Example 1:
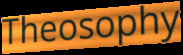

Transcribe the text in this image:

Theosophy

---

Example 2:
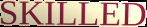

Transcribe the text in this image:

SKILLED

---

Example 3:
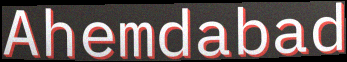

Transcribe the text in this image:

Ahemdabad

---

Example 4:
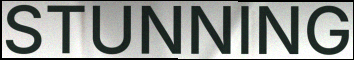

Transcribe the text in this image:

STUNNING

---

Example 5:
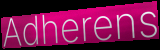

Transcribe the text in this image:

Adherens